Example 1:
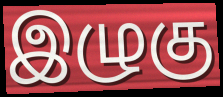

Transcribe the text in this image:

இழுகு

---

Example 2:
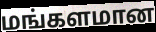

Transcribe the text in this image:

மங்களமான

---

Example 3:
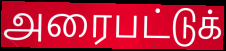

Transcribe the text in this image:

அரைபட்டுக்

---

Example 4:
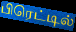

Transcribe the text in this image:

பிரெட்டில்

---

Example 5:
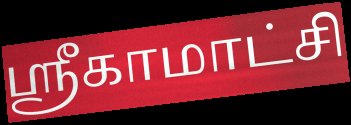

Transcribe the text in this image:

ஸ்ரீகாமாட்சி